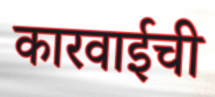
कारवाईची